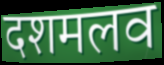
दशमलव